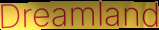
Dreamland